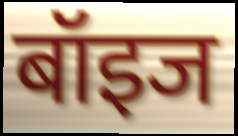
बॉइज